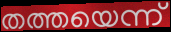
തത്തയെന്ന്